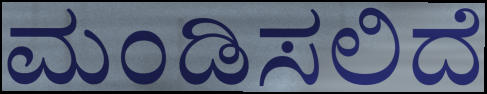
ಮಂಡಿಸಲಿದೆ